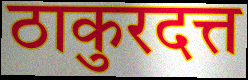
ठाकुरदत्त